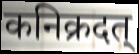
कनिक्रदत्